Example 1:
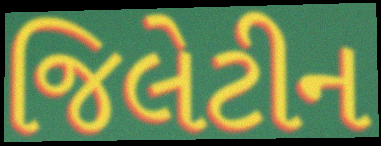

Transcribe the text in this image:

જિલેટીન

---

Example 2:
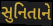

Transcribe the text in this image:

સુનિતાને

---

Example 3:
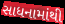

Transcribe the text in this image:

સાધનામાંથી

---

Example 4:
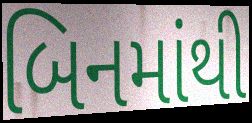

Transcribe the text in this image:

બિનમાંથી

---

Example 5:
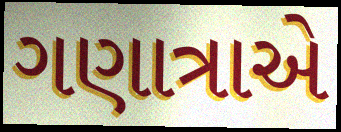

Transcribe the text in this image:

ગણાત્રાએ